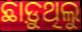
ଛାଡ଼ୁଥିଲୁ